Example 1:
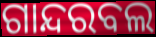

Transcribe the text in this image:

ଗାନ୍ଦରବଲ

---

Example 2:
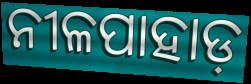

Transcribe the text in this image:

ନୀଳପାହାଡ଼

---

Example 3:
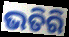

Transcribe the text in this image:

ଭତିରି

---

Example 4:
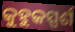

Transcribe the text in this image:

କୁହୁକସ୍ପର୍ଶ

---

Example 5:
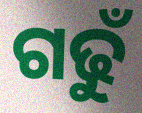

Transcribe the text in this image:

ଗଢୁଁ